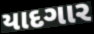
યાદગાર